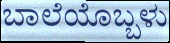
ಬಾಲೆಯೊಬ್ಬಳು